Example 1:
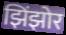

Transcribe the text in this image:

झिंझोर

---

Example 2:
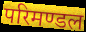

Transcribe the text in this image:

परिमण्डल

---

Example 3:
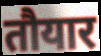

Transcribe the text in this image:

तौयार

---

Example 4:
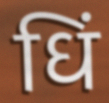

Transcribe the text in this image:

धिं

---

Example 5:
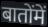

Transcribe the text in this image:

बातोंमें